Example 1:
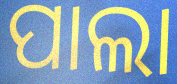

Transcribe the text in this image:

ପାଲା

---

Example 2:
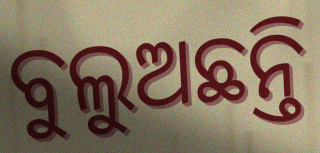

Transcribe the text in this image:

ବୁଲୁଅଛନ୍ତି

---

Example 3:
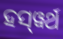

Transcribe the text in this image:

ହସ୍‌ୱର୍ଥ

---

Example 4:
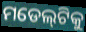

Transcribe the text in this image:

ମଡେଲ୍‌ଟିକୁ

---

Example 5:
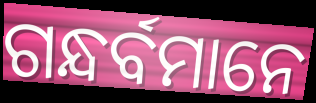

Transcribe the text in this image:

ଗନ୍ଧର୍ବମାନେ